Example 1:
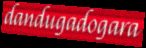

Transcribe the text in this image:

dandugadogara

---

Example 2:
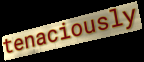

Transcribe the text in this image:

tenaciously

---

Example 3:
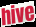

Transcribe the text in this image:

hive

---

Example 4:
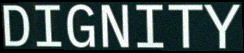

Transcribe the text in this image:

DIGNITY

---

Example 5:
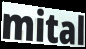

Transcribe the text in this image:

mital